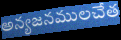
అన్యజనములచేత